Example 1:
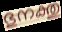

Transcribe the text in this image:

ഭുനക്തു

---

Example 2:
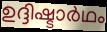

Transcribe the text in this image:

ഉദ്ദിഷ്ടാർഥം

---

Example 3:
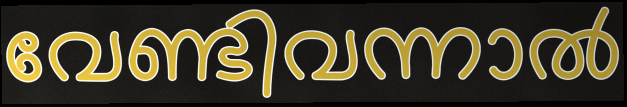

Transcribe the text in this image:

വേണ്ടിവന്നാൽ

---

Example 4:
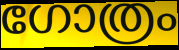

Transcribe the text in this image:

ഗോത്രം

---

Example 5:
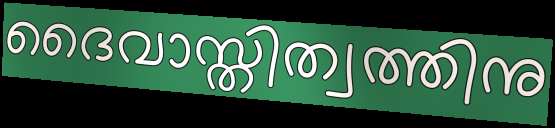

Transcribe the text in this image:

ദൈവാസ്തിത്വത്തിനു